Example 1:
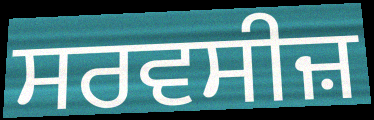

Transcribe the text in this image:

ਸਰਵਸੀਜ਼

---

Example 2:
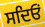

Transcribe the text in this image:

ਸਦਿਓਂ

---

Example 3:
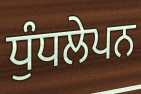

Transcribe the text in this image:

ਧੁੰਧਲੇਪਨ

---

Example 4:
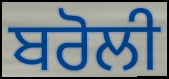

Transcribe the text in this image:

ਬਰੋਲੀ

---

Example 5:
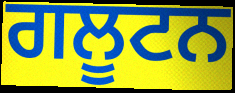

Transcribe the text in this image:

ਗਲੂਟਨ